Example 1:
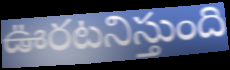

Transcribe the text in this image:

ఊరటనిస్తుంది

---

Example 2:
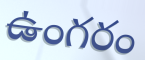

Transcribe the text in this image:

ఉంగరం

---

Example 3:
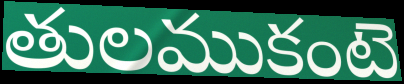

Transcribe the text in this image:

తులముకంటె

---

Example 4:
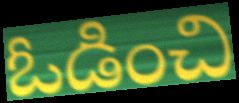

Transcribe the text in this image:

ఓడించి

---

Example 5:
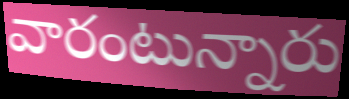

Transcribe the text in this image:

వారంటున్నారు